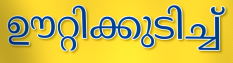
ഊറ്റിക്കുടിച്ച്